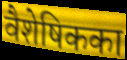
वैशेषिकका